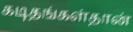
கடிதங்கள்தான்